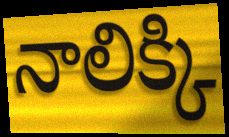
నాలిక్కి